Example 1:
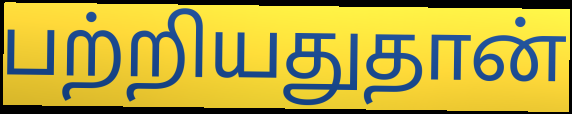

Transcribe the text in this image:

பற்றியதுதான்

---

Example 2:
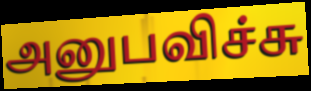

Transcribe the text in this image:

அனுபவிச்சு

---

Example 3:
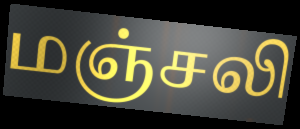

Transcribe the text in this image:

மஞ்சலி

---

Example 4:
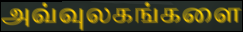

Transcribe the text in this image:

அவ்வுலகங்களை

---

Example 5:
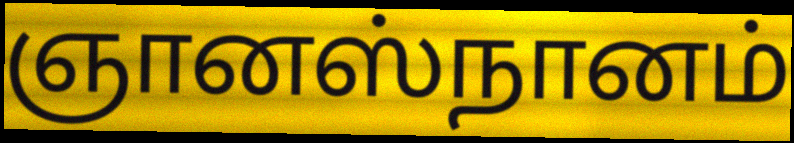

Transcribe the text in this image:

ஞானஸ்நானம்